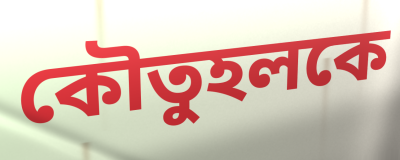
কৌতুহলকে